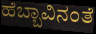
ಹೆಬ್ಬಾವಿನಂತೆ